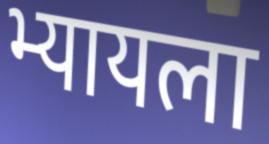
भ्यायला